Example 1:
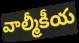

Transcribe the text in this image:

వాల్మీకీయ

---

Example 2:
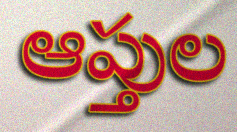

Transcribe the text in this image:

ఆప్తుల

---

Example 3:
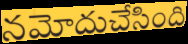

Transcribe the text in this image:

నమోదుచేసింది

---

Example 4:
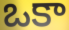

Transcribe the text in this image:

ఒకా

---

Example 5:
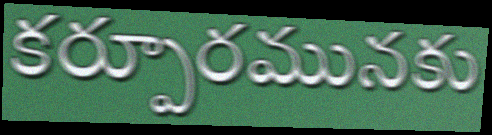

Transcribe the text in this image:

కర్పూరమునకు